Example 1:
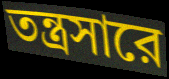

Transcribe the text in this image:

তন্ত্রসারে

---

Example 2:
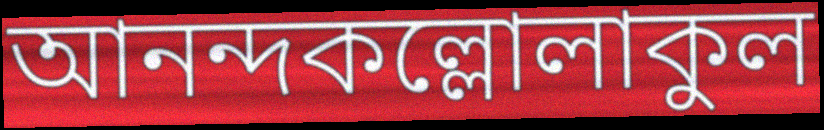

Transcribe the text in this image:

আনন্দকল্লোলাকুল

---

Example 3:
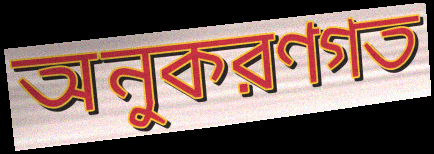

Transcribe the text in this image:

অনুকরণগত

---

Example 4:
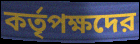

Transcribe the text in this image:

কর্তৃপক্ষদের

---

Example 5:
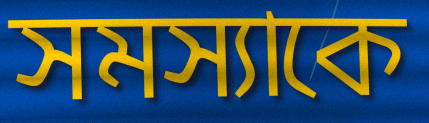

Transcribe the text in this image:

সমস্যাকে